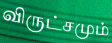
விருட்சமும்